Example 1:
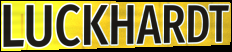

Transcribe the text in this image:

LUCKHARDT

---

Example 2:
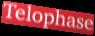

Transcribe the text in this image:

Telophase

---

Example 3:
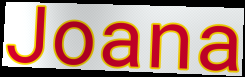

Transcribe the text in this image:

Joana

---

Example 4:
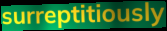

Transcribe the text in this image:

surreptitiously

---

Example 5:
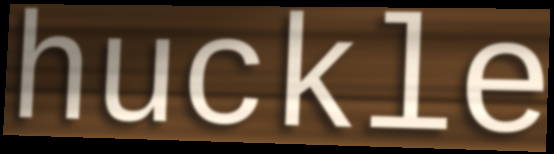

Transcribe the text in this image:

huckle